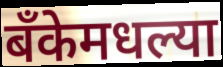
बँकेमधल्या